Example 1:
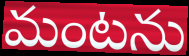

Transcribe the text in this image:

మంటను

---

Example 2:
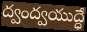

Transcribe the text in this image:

ద్వంద్వయుద్ధే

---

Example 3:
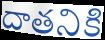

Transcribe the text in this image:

దాతనికి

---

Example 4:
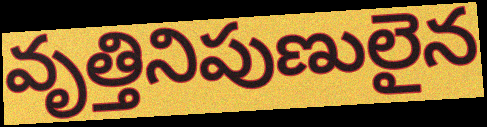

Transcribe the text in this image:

వృత్తినిపుణులైన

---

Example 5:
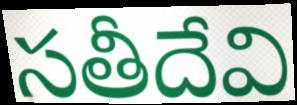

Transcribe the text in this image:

సతీదేవి